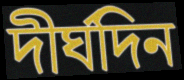
দীৰ্ঘদিন